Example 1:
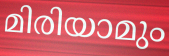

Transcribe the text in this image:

മിരിയാമും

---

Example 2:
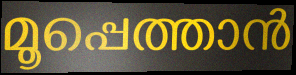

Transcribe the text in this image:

മൂപ്പെത്താൻ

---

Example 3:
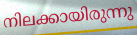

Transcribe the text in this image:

നിലക്കായിരുന്നു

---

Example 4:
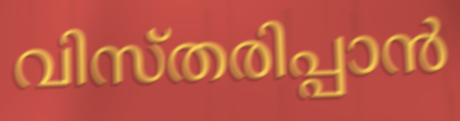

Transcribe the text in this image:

വിസ്തരിപ്പാൻ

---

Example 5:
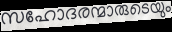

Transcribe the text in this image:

സഹോദരന്മാരുടെയും